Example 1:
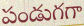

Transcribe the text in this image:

పండుగగా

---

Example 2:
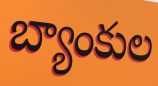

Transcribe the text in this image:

బ్యాంకుల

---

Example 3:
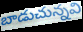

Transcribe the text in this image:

బాడుచున్నవి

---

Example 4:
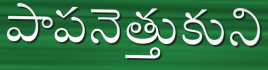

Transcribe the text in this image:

పాపనెత్తుకుని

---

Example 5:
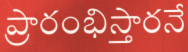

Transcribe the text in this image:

ప్రారంభిస్తారనే